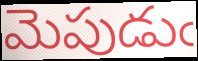
మెపుడుఁ